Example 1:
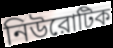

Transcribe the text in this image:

নিউরোটিক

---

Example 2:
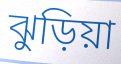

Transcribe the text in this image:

ঝুড়িয়া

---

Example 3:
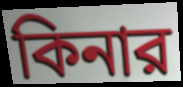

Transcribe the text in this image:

কিনার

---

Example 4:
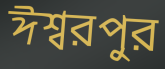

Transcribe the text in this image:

ঈশ্বরপুর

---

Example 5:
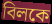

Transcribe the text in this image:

বিলকে